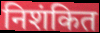
निशंकित